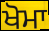
ਖੋਮਾ